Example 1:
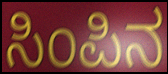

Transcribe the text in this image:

ಸಿಂಪಿನ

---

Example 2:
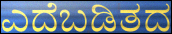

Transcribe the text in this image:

ಎದೆಬಡಿತದ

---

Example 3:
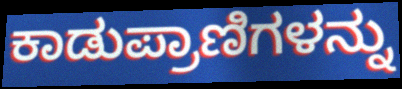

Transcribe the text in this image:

ಕಾಡುಪ್ರಾಣಿಗಳನ್ನು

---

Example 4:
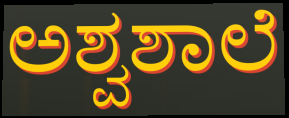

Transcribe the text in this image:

ಅಶ್ವಶಾಲೆ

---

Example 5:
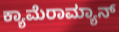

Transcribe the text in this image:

ಕ್ಯಾಮೆರಾಮ್ಯಾನ್